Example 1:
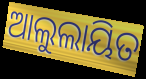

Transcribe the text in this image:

ଆଲୁଲାୟିତ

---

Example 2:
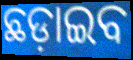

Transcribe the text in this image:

ଛଡ଼ାଇବ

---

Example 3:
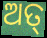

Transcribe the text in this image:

ଅତ୍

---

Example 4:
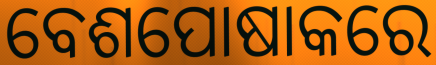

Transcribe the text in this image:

ବେଶପୋଷାକରେ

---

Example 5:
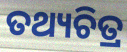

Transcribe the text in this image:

ତଥ୍ୟଚିତ୍ର